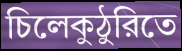
চিলেকুঠুরিতে